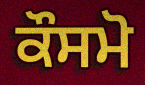
ਕੌਸਮੋ